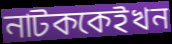
নাটককেইখন